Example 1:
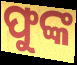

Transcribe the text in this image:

ଫୁଙ୍କ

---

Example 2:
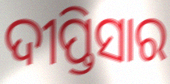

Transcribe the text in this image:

ଦୀପ୍ତିସାର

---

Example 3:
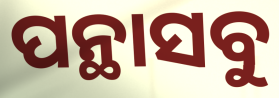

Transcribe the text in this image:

ପନ୍ଥାସବୁ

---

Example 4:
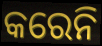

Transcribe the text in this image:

କରେନି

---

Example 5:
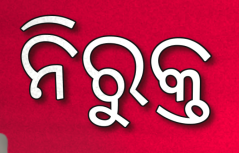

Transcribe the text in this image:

ନିରୁକ୍ତ